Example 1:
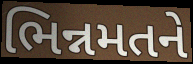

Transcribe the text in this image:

ભિન્નમતને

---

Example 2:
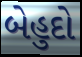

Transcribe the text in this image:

બેહુદો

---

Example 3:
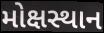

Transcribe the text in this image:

મોક્ષસ્થાન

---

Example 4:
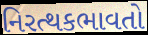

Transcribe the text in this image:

નિરત્થકભાવતો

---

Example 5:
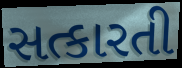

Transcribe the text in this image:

સત્કારતી